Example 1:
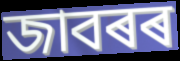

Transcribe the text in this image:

জাবৰৰ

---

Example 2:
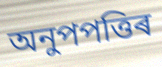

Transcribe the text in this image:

অনুপপত্তিৰ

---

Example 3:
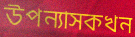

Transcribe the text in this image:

উপন্যাসকখন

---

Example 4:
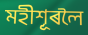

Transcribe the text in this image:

মহীশূৰলৈ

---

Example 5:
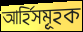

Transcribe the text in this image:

আৰ্হিসমূহক